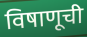
विषाणूची